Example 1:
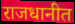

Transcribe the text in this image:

राजधानीत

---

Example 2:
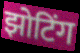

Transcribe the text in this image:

झोटिंग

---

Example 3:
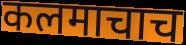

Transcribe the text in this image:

कलमाचाच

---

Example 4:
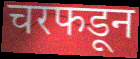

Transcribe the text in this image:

चरफडून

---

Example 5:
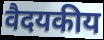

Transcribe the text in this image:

वैदयकीय